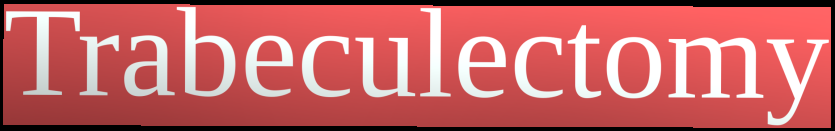
Trabeculectomy